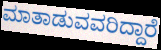
ಮಾತಾಡುವವರಿದ್ದಾರೆ